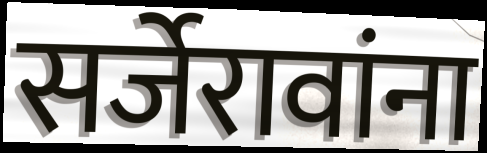
सर्जेरावांना